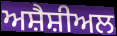
ਅਸ਼ੈਸ਼ੀਅਲ